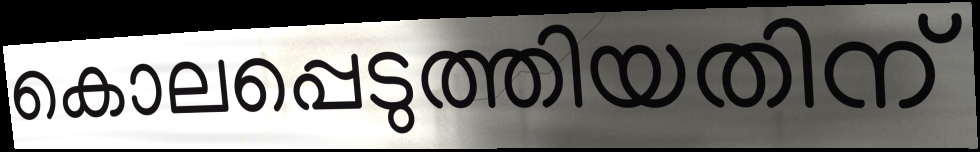
കൊലപ്പെടുത്തിയതിന്